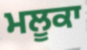
ਮਲੂਕਾ